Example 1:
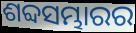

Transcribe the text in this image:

ଶବ୍ଦସମ୍ଭାରର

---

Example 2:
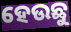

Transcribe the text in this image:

ହେଉଛୁ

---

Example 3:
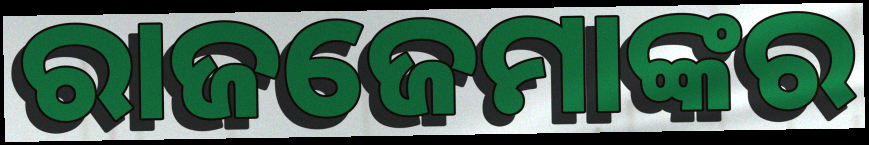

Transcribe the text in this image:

ରାଜଜେମାଙ୍କର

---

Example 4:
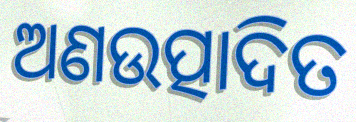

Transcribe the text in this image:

ଅଣଉତ୍ପାଦିତ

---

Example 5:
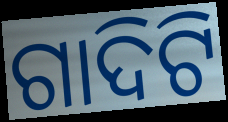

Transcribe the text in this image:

ଗାଦିଟି